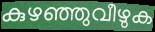
കുഴഞ്ഞുവീഴുക